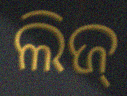
ଲିଜ୍